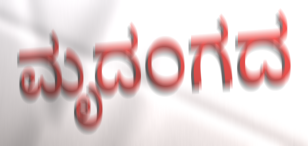
ಮೃದಂಗದ